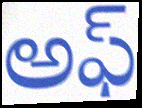
అఫ్